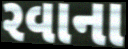
રવાના